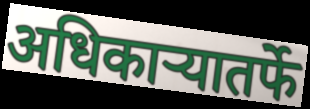
अधिकाऱ्यातर्फे